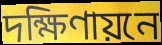
দক্ষিণায়নে